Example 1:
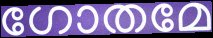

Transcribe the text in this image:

ഗോതമേ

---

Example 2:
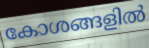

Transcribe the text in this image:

കോശങ്ങളിൽ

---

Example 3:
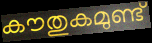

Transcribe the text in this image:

കൗതുകമുണ്ട്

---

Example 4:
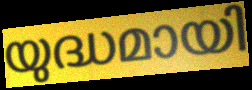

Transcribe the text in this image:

യുദ്ധമായി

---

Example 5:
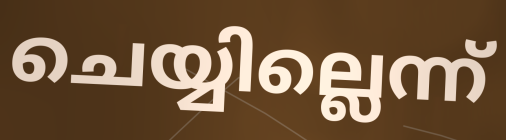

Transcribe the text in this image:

ചെയ്യില്ലെന്ന്